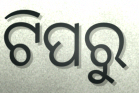
ଟିପରୁ